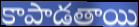
కాపాడతాయి